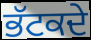
ਭੱਟਕਦੇ